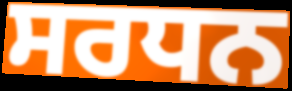
ਸਰਧਨ